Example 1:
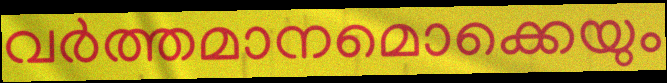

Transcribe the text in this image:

വർത്തമാനമൊക്കെയും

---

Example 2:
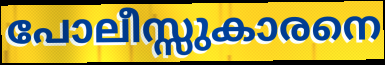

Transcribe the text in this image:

പോലീസ്സുകാരനെ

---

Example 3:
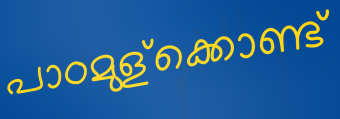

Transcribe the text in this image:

പാഠമുള്ക്കൊണ്ട്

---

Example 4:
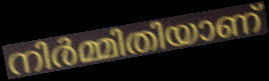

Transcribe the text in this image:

നിർമ്മിതിയാണ്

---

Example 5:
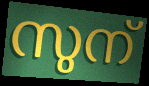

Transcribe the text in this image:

സുന്